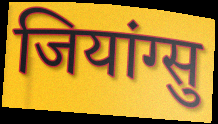
जियांग्सु